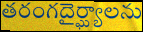
తరంగదైర్ఘ్యాలను